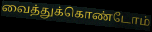
வைத்துக்கொண்டோம்